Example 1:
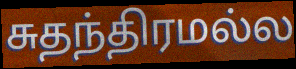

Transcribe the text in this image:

சுதந்திரமல்ல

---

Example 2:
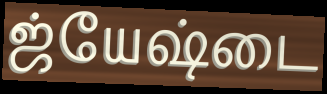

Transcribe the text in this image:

ஜ்யேஷ்டை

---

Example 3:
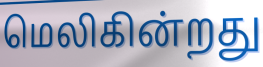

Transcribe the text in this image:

மெலிகின்றது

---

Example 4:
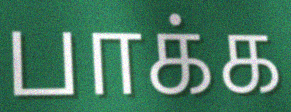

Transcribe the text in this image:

பாக்க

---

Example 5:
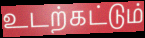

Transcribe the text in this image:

உடற்கட்டும்